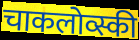
चाकलोव्स्की